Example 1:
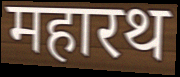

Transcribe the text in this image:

महारथ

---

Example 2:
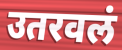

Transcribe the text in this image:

उतरवलं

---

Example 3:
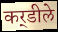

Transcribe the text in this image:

कर्डीले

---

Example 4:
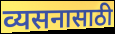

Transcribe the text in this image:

व्यसनासाठी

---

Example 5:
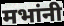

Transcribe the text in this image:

मभांनी